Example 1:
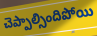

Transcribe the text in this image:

చెప్పాల్సిందిపోయి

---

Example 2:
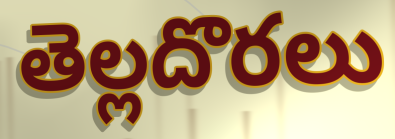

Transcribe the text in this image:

తెల్లదొరలు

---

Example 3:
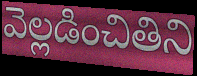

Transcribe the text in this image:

వెల్లడించితిని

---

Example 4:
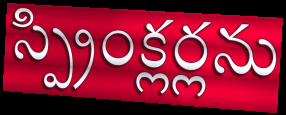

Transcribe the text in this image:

స్ప్రింక్లర్లను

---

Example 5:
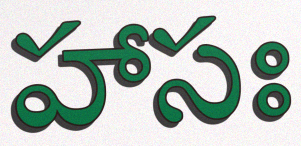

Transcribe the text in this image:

హాసః